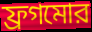
ফ্রগমোর